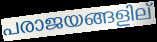
പരാജയങ്ങളില്